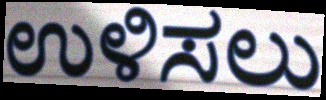
ಉಳಿಸಲು